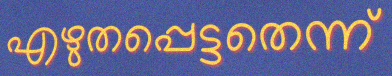
എഴുതപ്പെട്ടതെന്ന്